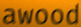
awood